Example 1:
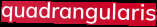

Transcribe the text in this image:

quadrangularis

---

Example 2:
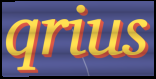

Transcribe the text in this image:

qrius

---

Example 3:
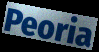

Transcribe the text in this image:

Peoria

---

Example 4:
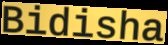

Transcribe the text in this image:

Bidisha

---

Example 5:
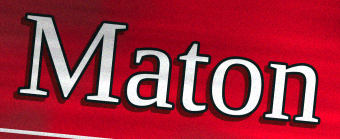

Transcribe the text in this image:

Maton